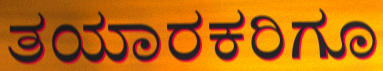
ತಯಾರಕರಿಗೂ